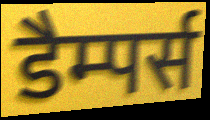
डैम्पर्स